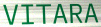
VITARA